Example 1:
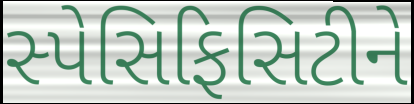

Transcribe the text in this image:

સ્પેસિફિસિટીને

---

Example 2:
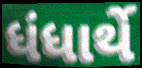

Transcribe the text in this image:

ધંધાર્થે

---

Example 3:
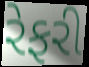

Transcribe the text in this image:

રેફરી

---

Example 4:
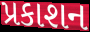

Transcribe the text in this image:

પ્રકાશન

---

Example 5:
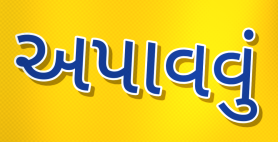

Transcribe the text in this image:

અપાવવું